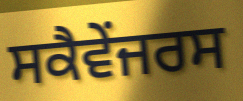
ਸਕੈਵੇਂਜਰਸ